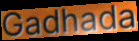
Gadhada